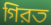
গিরত